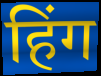
हिंग